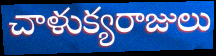
చాళుక్యరాజులు